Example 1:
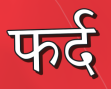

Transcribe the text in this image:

फर्द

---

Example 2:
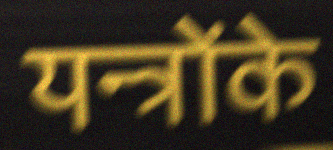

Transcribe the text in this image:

यन्त्रोंके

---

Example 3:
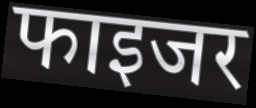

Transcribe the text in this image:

फाइजर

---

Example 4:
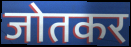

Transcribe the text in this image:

जोतकर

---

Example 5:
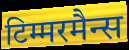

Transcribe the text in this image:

टिम्मरमैन्स